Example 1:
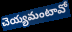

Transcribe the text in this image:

చెయ్యమంటావో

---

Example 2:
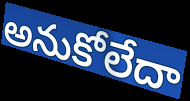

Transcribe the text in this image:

అనుకోలేదా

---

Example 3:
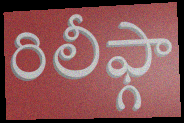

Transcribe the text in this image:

రిలీఫ్గా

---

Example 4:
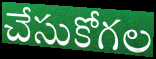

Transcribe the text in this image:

చేసుకోగల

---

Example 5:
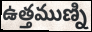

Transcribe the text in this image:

ఉత్తముణ్ని